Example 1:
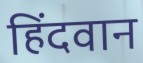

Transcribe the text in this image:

हिंदवान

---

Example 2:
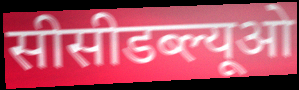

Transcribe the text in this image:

सीसीडब्ल्यूओ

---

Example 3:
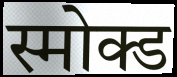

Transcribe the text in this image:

स्मोक्ड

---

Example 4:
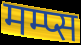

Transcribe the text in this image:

मम्प्स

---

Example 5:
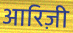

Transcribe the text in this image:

आरिज़ी